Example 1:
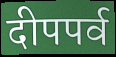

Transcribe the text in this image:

दीपपर्व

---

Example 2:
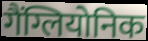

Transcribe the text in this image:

गैंग्लियोनिक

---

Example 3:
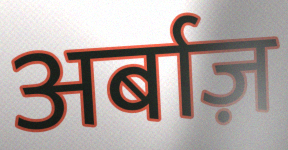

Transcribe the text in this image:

अर्बाज़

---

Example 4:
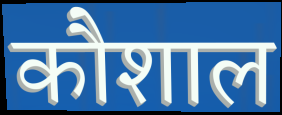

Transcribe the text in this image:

कौशाल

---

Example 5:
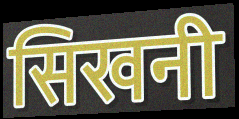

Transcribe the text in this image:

सिखनी